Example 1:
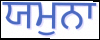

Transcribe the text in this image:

ਯਮੁਨਾ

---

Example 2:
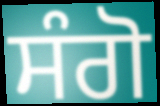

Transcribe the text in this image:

ਸੰਗੋ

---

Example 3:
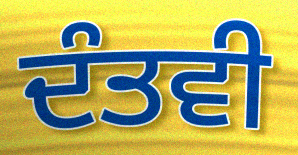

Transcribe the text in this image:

ਦੰਤਵੀ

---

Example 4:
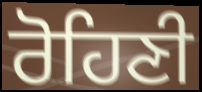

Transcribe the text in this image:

ਰੋਹਿਣੀ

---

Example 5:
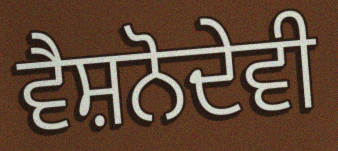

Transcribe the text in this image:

ਵੈਸ਼ਨੋਦੇਵੀ